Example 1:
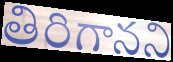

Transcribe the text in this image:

తిరిగానని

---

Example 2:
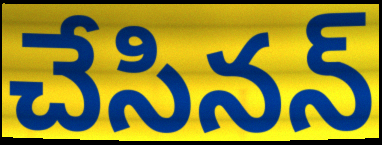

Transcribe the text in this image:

చేసినన్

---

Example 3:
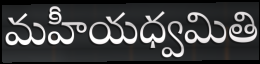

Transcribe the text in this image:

మహీయధ్వమితి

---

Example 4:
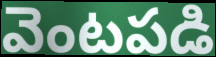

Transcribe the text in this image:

వెంటపడి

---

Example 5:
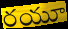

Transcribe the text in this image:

రయూ